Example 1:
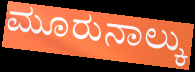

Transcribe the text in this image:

ಮೂರುನಾಲ್ಕು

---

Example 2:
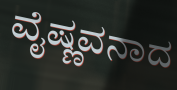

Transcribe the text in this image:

ವೈಷ್ಣವನಾದ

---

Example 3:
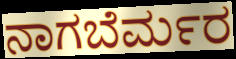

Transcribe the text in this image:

ನಾಗಬೆರ್ಮರ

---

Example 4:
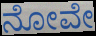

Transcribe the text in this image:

ನೋವೇ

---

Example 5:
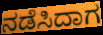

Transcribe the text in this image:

ನಡೆಸಿದಾಗ